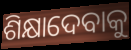
ଶିକ୍ଷାଦେବାକୁ